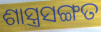
ଶାସ୍ତ୍ରସଙ୍ଗତ